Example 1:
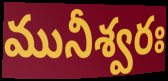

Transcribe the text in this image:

మునీశ్వరః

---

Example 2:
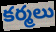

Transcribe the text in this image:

కర్మలు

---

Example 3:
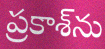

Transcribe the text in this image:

ప్రకాశ్‌ను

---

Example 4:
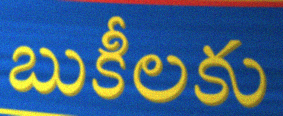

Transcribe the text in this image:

బుకీలకు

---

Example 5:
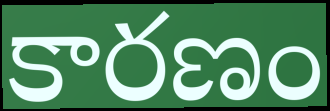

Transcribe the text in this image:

కారణం